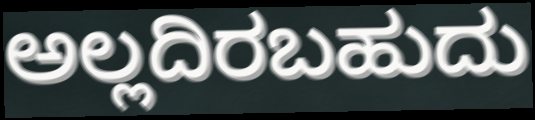
ಅಲ್ಲದಿರಬಹುದು